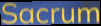
Sacrum